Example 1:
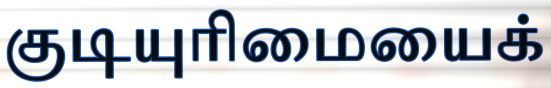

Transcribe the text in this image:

குடியுரிமையைக்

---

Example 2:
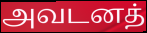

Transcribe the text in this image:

அவடனத்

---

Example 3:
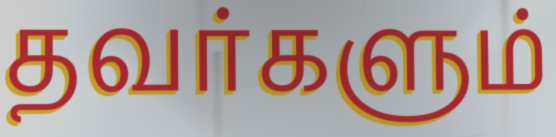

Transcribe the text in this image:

தவர்களும்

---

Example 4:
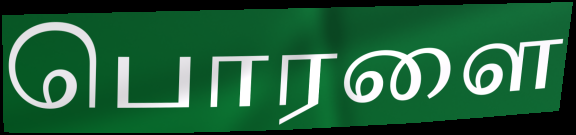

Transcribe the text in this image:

பொரளை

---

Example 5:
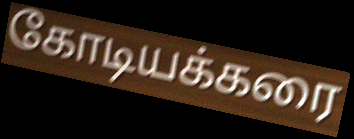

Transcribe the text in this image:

கோடியக்கரை